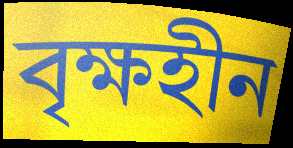
বৃক্ষহীন